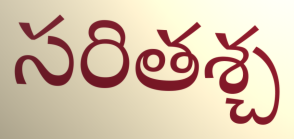
సరితశ్చ